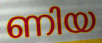
ണിയ